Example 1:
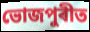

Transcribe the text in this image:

ভোজপুৰীত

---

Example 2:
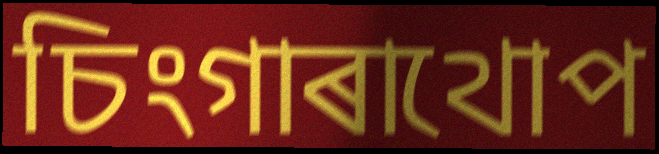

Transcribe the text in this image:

চিংগাৰাথোপ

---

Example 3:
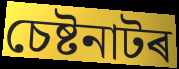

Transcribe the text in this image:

চেষ্টনাটৰ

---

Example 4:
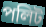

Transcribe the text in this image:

পলিট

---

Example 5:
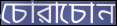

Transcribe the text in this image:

চোৱাচোন